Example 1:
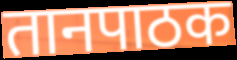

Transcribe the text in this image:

तानपाठक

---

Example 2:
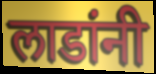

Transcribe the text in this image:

लाडांनी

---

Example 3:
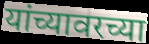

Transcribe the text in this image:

यांच्यावरच्या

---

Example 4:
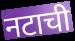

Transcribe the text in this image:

नटाची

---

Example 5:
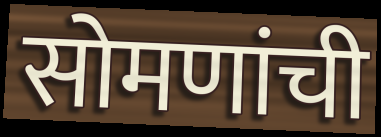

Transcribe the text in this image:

सोमणांची